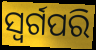
ସ୍ୱର୍ଗପରି